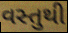
વસ્તુથી